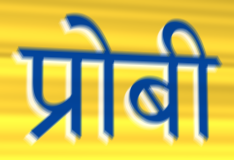
प्रोबी